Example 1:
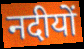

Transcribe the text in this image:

नदीयों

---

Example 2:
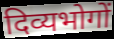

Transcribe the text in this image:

दिव्यभोगों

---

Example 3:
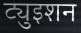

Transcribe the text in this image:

ट्युइशन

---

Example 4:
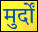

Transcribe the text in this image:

मुर्दों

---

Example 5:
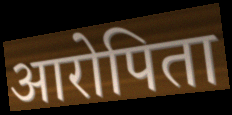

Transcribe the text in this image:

आरोपिता